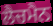
ਲੈਚਮੈਨ